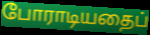
போராடியதைப்